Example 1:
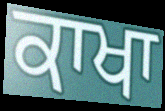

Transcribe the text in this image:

ਕਾਖਾ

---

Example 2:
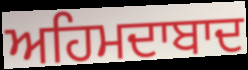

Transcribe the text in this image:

ਅਹਿਮਦਾਬਾਦ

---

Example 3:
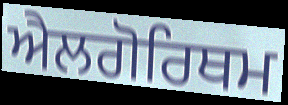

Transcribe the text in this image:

ਐਲਗੋਰਿਥਮ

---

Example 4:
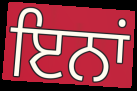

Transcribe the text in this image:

ਇਨਾਂ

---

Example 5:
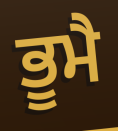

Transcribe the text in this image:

ਭੂਮੈ